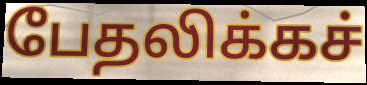
பேதலிக்கச்